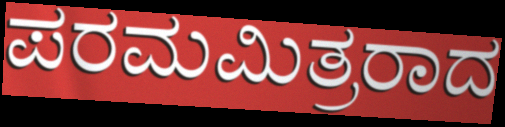
ಪರಮಮಿತ್ರರಾದ